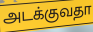
அடக்குவதா